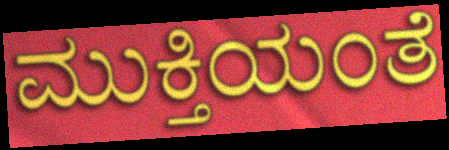
ಮುಕ್ತಿಯಂತೆ